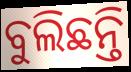
ବୁଲିଛନ୍ତି